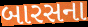
બારસના